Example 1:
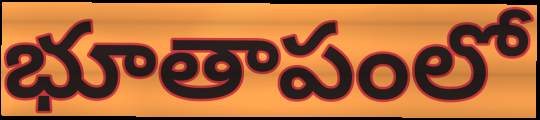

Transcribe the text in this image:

భూతాపంలో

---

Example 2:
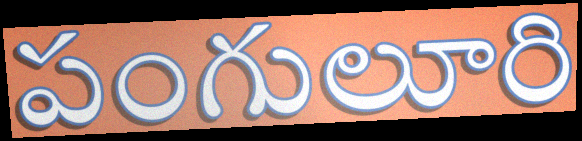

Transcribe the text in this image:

పంగులూరి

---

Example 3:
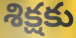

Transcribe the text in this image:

శిక్షకు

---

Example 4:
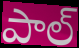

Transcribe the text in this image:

పాల్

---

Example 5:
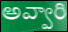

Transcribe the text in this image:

అవ్వారి